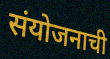
संयोजनाची